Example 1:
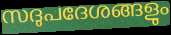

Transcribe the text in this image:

സദുപദേശങ്ങളും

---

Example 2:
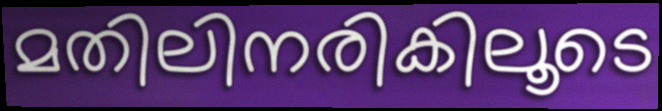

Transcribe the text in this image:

മതിലിനരികിലൂടെ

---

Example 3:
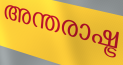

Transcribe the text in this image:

അന്തരാഷ്ട്ര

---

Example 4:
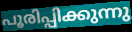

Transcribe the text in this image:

പൂരിപ്പിക്കുന്നു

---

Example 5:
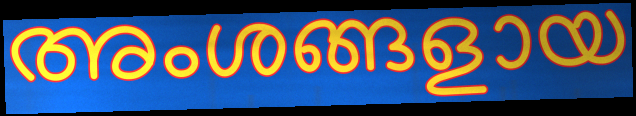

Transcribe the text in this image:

അംശങ്ങളായ